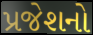
પ્રજેશનો